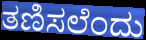
ತಣಿಸಲೆಂದು